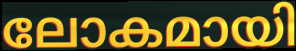
ലോകമായി